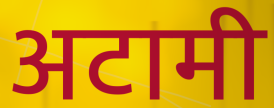
अटामी